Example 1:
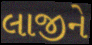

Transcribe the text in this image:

લાજીને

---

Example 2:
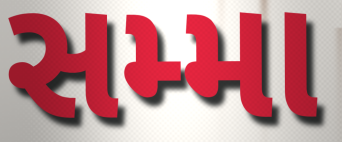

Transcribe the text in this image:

સમ્મા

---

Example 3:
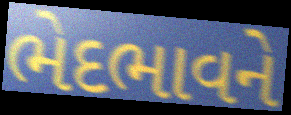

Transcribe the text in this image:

ભેદભાવને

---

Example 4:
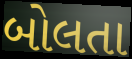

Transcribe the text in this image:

બોલતા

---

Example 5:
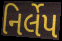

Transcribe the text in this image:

નિર્લેપ